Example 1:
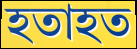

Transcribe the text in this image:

হতাহত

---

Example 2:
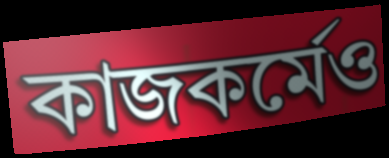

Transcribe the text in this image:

কাজকর্মেও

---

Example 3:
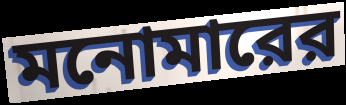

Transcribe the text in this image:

মনোমারের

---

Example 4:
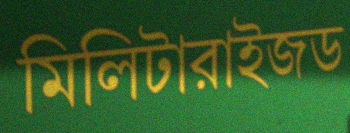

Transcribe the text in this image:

মিলিটারাইজড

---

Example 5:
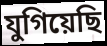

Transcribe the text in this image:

যুগিয়েছি